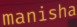
manisha